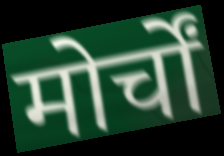
मोर्चों